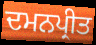
ਦਮਨਪ੍ਰੀਤ